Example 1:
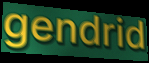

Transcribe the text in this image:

gendrid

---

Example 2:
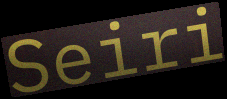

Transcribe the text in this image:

Seiri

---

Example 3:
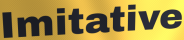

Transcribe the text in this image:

Imitative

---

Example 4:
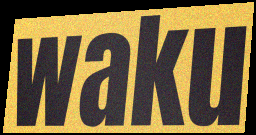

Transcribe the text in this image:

waku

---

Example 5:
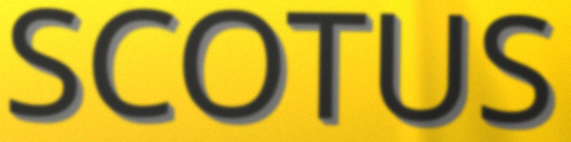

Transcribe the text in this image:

SCOTUS